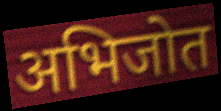
अभिजोत